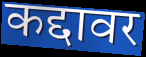
कद्दावर